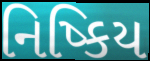
નિષ્કિય